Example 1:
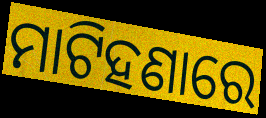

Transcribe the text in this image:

ମାଟିହଣାରେ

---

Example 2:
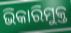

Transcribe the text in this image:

ଭିକାରିମୁକ୍ତ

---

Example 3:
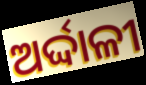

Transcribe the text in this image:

ଅର୍ଦ୍ଦାଳୀ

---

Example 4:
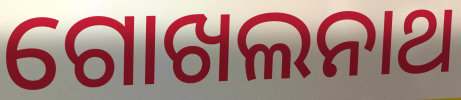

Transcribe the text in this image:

ଗୋଖଲନାଥ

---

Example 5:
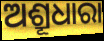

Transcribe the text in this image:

ଅଶ୍ରୂଧାରା